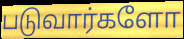
படுவார்களோ